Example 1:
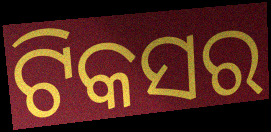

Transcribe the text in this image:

ଟିକସର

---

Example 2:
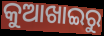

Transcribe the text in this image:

କୁଆଖାଇରୁ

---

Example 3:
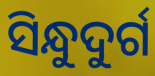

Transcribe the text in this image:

ସିନ୍ଧୁଦୁର୍ଗ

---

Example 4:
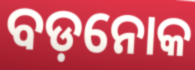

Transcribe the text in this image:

ବଡ଼ନୋକ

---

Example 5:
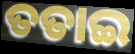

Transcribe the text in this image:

ତତାଇ